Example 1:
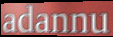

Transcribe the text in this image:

adannu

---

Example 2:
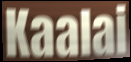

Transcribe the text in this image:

Kaalai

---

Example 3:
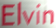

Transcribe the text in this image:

Elvin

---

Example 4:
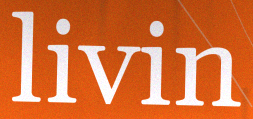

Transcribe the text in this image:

livin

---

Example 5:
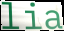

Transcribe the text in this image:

lia